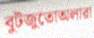
বুটজুতোঅলারা